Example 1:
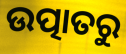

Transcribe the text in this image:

ଉତ୍ପାତରୁ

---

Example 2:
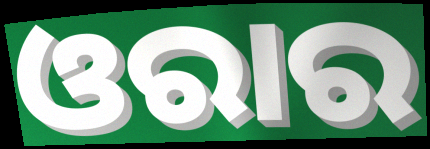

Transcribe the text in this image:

ଓରାର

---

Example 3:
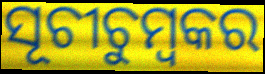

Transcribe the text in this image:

ସୂଚୀଚୁମ୍ବକର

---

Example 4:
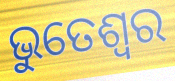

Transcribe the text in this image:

ଭୁତେଶ୍ୱର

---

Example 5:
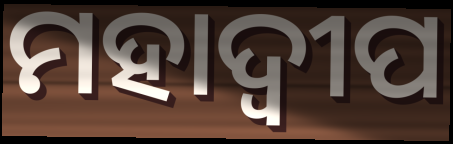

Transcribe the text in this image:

ମହାଦ୍ୱୀପ